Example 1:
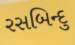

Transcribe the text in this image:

રસબિન્દુ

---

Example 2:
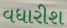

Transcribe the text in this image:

વધારીશ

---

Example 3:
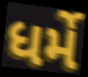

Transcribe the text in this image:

ધર્મે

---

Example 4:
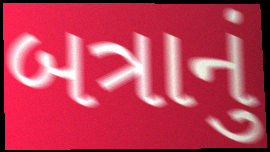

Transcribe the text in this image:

બત્રાનું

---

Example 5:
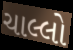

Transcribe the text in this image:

ચાલ્લો